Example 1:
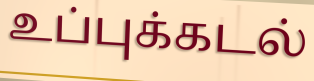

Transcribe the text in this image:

உப்புக்கடல்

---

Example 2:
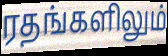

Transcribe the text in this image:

ரதங்களிலும்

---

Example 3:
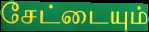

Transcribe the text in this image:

சேட்டையும்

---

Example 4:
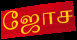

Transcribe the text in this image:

ஜோச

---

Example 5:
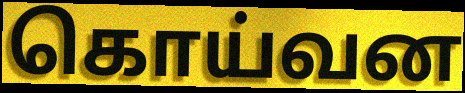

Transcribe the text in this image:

கொய்வன